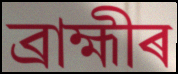
ব্ৰাহ্মীৰ